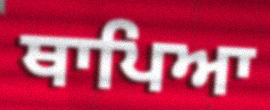
ਥਾਪਿਆ